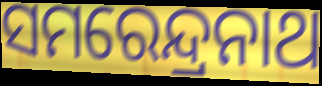
ସମରେନ୍ଦ୍ରନାଥ